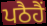
ਪਠੈਹੈਂ